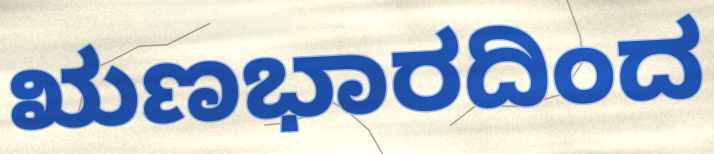
ಋಣಭಾರದಿಂದ